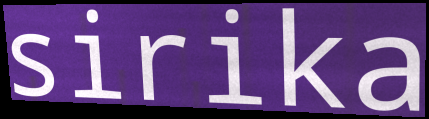
sirika